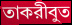
তাকরীবুত